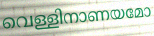
വെള്ളിനാണയമോ